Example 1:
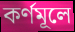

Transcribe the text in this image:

কর্ণমূলে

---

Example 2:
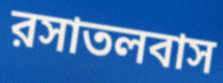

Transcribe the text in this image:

রসাতলবাস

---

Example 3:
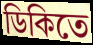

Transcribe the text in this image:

ডিকিতে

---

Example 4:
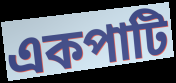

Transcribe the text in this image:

একপাটি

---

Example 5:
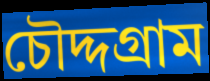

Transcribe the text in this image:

চৌদ্দগ্রাম